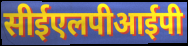
सीईएलपीआईपी